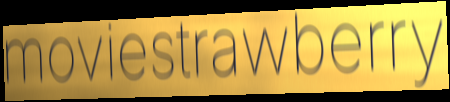
moviestrawberry